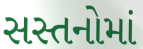
સસ્તનોમાં